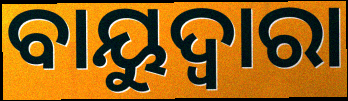
ବାୟୁଦ୍ୱାରା